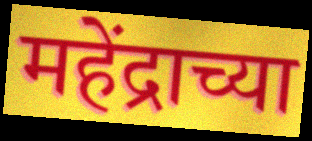
महेंद्राच्या